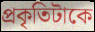
প্রকৃতিটাকে